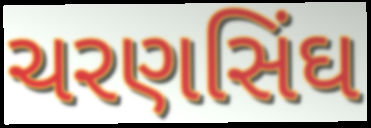
ચરણસિંઘ